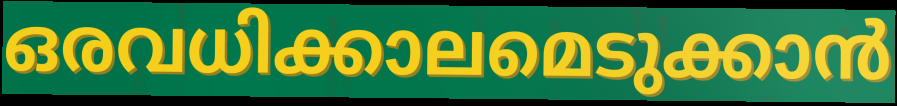
ഒരവധിക്കാലമെടുക്കാൻ